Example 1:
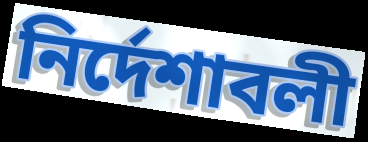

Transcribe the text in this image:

নির্দেশাবলী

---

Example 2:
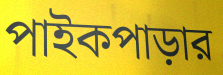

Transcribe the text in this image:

পাইকপাড়ার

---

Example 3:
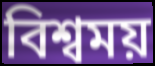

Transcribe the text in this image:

বিশ্বময়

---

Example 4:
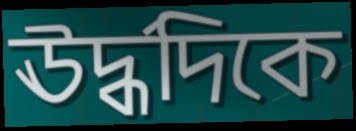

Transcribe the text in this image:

ঊর্দ্ধদিকে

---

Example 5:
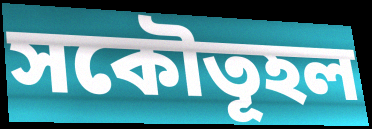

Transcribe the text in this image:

সকৌতূহল